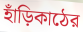
হাঁড়িকাঠের